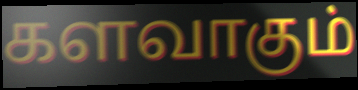
களவாகும்